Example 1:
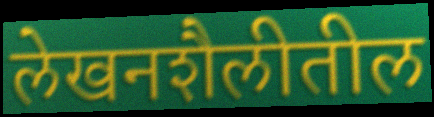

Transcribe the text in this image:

लेखनशैलीतील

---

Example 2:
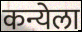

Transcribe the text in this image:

कन्येला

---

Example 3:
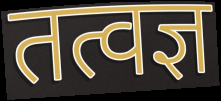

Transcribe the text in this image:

तत्वज्ञ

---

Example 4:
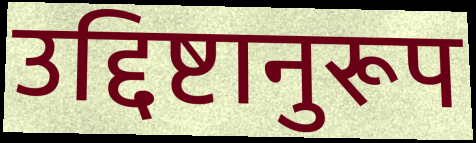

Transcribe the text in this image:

उद्दिष्टानुरूप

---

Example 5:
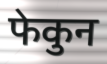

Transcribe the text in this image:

फेकुन